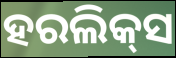
ହରଲିକ୍‍ସ